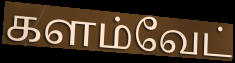
களம்வேட்